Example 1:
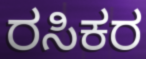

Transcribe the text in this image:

ರಸಿಕರ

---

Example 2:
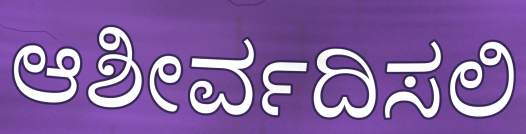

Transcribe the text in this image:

ಆಶೀರ್ವದಿಸಲಿ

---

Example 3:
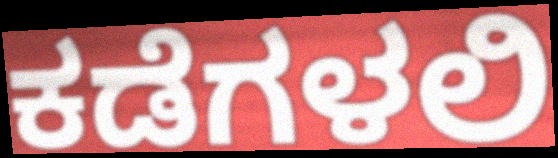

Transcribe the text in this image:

ಕಡೆಗಳಲಿ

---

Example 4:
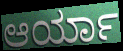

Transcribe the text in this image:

ಆರ್ಯಾ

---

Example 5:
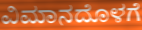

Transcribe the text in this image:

ವಿಮಾನದೊಳಗೆ